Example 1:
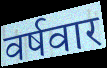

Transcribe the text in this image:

वर्षवार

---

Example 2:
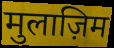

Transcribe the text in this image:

मुलाज़िम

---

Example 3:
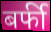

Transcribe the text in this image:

बर्फी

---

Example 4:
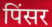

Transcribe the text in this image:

पिंसर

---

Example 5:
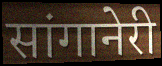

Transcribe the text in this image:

सांगानेरी